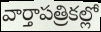
వార్తాపత్రికల్లో